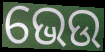
ଭେଉ